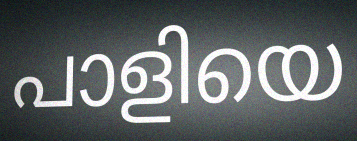
പാളിയെ